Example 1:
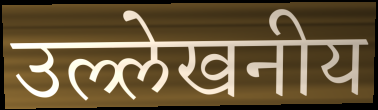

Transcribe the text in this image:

उल्लेखनीय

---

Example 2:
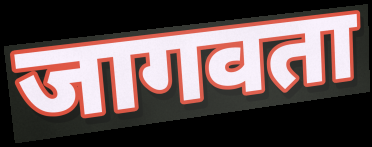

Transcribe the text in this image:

जागवता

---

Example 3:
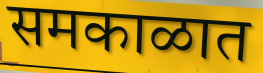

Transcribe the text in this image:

समकाळात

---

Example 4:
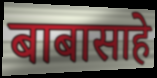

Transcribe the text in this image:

बाबासाहे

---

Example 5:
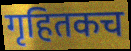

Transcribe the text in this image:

गृहितकच